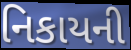
નિકાયની